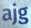
ajg